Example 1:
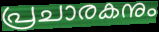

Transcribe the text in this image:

പ്രചാരകനും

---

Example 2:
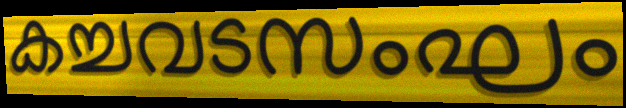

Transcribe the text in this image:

കച്ചവടസംഘം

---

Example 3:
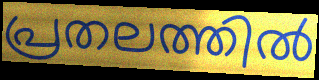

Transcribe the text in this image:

പ്രതലത്തിൽ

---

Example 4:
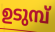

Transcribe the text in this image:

ഉടുമ്പ്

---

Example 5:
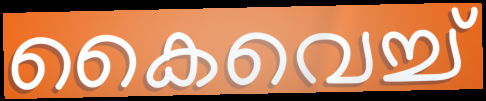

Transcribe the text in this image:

കൈവെച്ച്